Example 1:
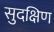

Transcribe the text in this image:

सुदक्षिण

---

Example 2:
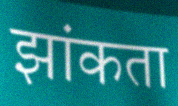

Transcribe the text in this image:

झांकता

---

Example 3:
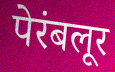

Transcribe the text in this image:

पेरंबलूर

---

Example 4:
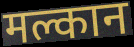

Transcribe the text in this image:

मल्कान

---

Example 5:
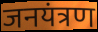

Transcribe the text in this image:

जनयंत्रण